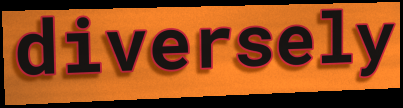
diversely